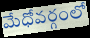
మేధోవర్గంలో